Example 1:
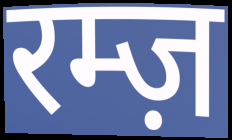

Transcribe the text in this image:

रम्ज़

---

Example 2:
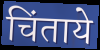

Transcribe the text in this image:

चिंताये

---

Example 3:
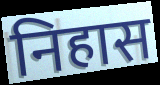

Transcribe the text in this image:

निहास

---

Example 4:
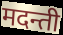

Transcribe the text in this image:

मदन्ती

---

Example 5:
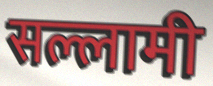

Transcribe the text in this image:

सल्लामी